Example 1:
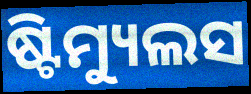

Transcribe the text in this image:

ଷ୍ଟିମ୍ୟୁଲସ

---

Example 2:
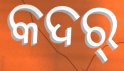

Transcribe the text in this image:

କଦର୍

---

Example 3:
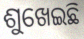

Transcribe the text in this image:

ଶୁଖେଇଛି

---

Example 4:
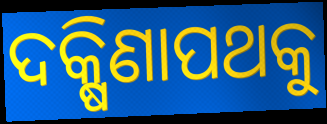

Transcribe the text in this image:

ଦକ୍ଷିଣାପଥକୁ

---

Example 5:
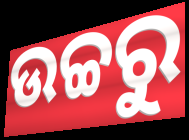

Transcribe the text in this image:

ଉଚ୍ଚରୁ